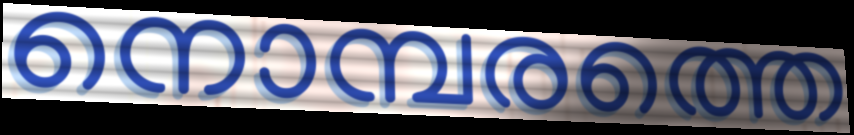
നൊമ്പരത്തെ